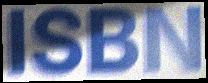
ISBN